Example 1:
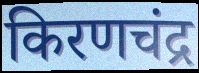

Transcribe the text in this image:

किरणचंद्र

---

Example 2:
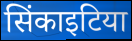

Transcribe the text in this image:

सिंकाइटिया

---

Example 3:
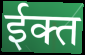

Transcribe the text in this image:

ईक्त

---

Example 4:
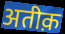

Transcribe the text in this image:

अतीक़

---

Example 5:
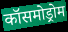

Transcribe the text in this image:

कॉसमोड्रोम